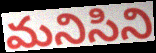
మనిసిని